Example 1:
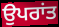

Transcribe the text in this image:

ਉਪਰਾਂਤ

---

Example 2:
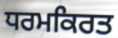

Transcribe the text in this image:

ਧਰਮਕਿਰਤ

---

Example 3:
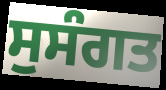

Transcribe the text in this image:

ਸੁਸੰਗਤ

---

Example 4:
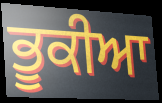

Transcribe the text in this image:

ਭੂਕੀਆ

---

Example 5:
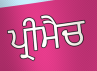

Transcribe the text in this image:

ਪ੍ਰੀਮੈਚ